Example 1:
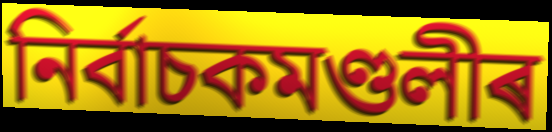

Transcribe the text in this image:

নিৰ্বাচকমণ্ডলীৰ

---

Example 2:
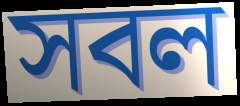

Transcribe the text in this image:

সবল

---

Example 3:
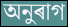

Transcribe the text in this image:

অনুৰাগ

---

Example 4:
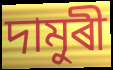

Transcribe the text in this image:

দামুৰী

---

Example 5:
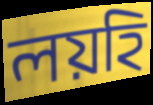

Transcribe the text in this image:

লয়হি